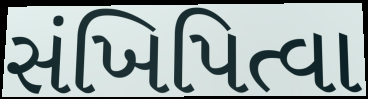
સંખિપિત્વા